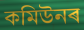
কমিউনৰ